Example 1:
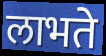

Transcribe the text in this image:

लाभते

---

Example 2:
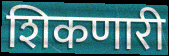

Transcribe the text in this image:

शिकणारी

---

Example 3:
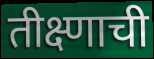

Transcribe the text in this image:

तीक्ष्णाची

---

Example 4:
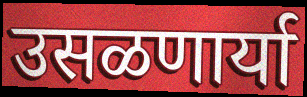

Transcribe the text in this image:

उसळणार्या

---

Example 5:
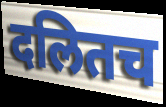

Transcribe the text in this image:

दलितच